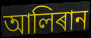
আলিৰান